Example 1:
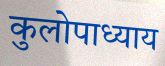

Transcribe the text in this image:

कुलोपाध्याय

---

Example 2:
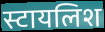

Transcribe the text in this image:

स्टायलिश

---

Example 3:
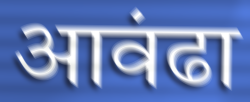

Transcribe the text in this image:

आवंढा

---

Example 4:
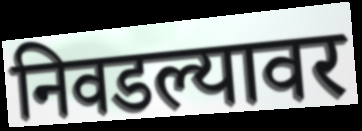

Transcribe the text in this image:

निवडल्यावर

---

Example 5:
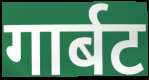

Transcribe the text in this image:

गार्बट